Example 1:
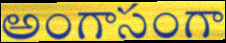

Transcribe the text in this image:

అంగాసంగా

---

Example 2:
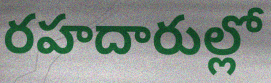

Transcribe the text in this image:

రహదారుల్లో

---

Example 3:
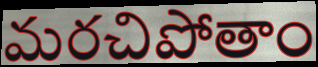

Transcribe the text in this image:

మరచిపోతాం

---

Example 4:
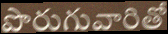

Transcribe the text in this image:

పొరుగువారితో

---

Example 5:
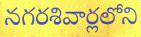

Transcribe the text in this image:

నగరశివార్లలోని